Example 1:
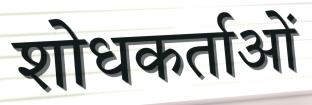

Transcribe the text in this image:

शोधकर्ताओं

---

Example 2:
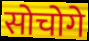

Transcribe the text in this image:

सोचोगे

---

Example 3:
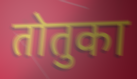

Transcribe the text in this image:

तोतुका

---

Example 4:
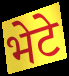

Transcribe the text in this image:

भेटे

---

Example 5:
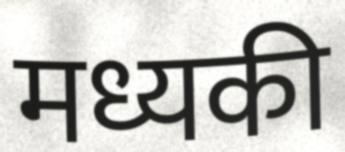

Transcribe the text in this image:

मध्यकी